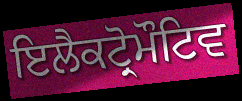
ਇਲੈਕਟ੍ਰੋਮੌਟਿਵ